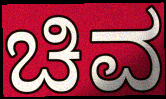
ಚಿವ